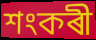
শংকৰী